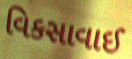
વિકસાવાઈ